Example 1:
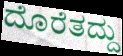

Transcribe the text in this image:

ದೊರೆತದ್ದು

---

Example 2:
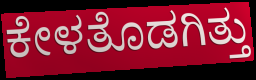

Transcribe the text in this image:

ಕೇಳತೊಡಗಿತ್ತು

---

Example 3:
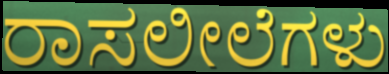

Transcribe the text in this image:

ರಾಸಲೀಲೆಗಳು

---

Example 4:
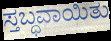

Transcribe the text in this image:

ಸ್ತಬ್ಧವಾಯಿತು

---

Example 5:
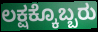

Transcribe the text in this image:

ಲಕ್ಷಕ್ಕೊಬ್ಬರು